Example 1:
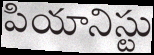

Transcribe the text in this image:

పియానిస్టు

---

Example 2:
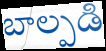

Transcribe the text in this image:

బాల్పడి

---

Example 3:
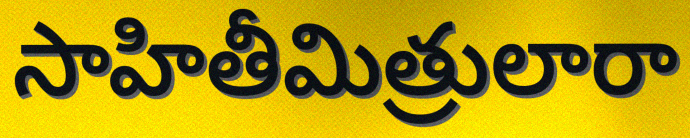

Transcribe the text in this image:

సాహితీమిత్రులారా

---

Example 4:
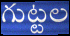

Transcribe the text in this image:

గుట్టల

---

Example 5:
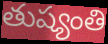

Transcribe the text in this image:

తుష్యంతి